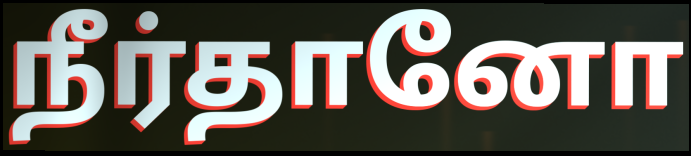
நீர்தானோ